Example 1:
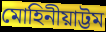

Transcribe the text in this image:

মোহিনীয়াট্টম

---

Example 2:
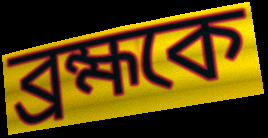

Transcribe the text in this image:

ব্রহ্মকে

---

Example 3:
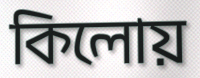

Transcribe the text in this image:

কিলোয়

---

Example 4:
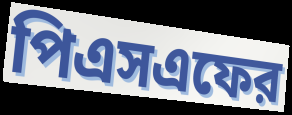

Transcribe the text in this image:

পিএসএফের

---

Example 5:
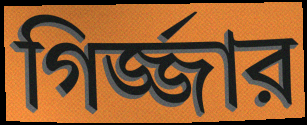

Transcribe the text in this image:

গির্জ্জার